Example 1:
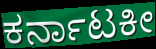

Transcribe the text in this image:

ಕರ್ನಾಟಕೀ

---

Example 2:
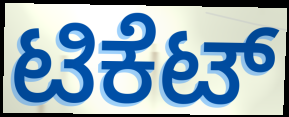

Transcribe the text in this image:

ಟಿಕೆಟ್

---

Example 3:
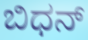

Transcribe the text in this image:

ಬಿಧನ್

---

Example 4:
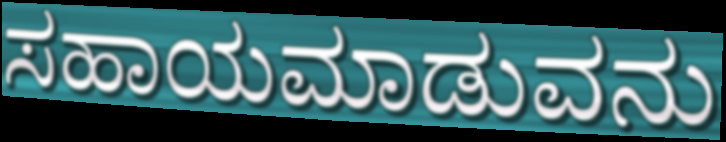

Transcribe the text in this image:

ಸಹಾಯಮಾಡುವನು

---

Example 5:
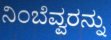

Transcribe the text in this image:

ನಿಂಬೆವ್ವರನ್ನು